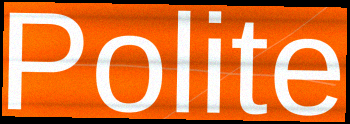
Polite